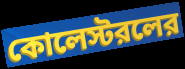
কোলেস্টরলের